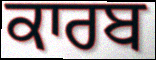
ਕਾਰਬ